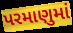
પરમાણુમાં